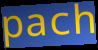
pach